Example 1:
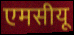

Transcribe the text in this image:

एमसीयू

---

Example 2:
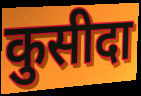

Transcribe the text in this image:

कुसीदा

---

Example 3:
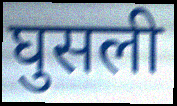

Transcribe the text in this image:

घुसली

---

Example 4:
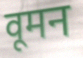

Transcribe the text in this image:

वूमन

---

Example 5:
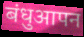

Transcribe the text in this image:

बंधुआपन